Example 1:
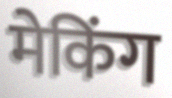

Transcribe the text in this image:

मेकिंग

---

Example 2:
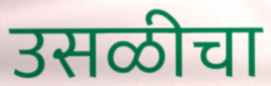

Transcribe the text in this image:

उसळीचा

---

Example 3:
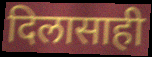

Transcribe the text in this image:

दिलासाही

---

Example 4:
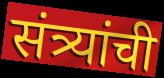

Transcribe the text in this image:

संत्र्यांची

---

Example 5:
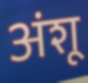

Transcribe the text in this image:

अंशू